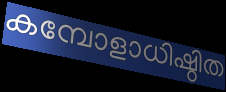
കമ്പോളാധിഷ്ഠിത